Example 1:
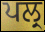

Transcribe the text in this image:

ਪਲ੍ਰ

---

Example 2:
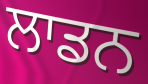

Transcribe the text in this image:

ਲਾਡਨ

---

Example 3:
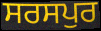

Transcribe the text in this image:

ਸਰਸਪੁਰ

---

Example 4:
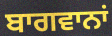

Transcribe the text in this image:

ਬਾਗਵਾਨਾਂ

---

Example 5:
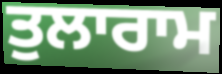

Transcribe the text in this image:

ਤੁਲਾਰਾਮ